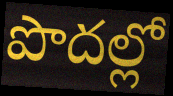
పొదల్లో